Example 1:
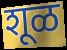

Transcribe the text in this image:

शूळ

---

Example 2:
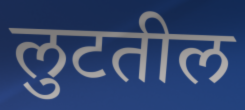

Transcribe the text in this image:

लुटतील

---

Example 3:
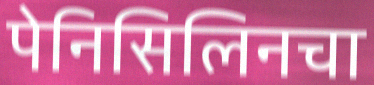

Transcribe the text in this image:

पेनिसिलिनचा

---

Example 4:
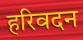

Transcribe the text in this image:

हरिवदन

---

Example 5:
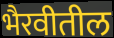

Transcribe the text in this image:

भैरवीतील